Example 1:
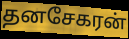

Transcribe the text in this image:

தனசேகரன்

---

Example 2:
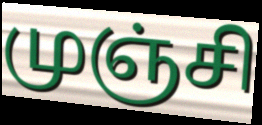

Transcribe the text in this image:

முஞ்சி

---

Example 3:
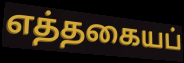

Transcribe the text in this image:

எத்தகையப்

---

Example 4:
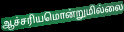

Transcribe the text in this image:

ஆச்சரியமொன்றுமில்லை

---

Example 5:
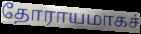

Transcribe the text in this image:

தோராயமாகச்